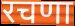
रचणा